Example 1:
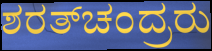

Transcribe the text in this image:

ಶರತ್‌ಚಂದ್ರರು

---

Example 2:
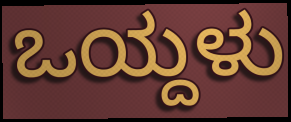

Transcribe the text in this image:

ಒಯ್ದಳು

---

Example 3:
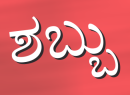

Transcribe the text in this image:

ಶಬ್ಬು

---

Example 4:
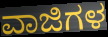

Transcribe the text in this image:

ವಾಜಿಗಳ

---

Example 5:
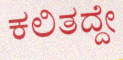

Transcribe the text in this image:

ಕಲಿತದ್ದೇ